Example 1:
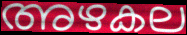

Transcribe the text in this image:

അഴകല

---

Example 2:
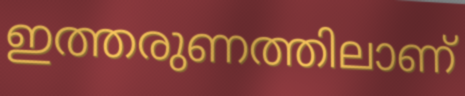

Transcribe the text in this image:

ഇത്തരുണത്തിലാണ്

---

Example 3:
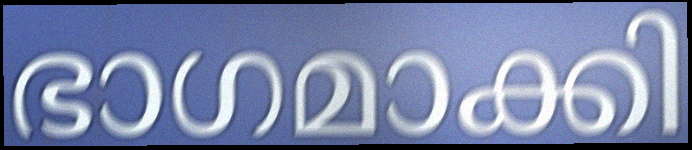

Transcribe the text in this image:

ഭാഗമാക്കി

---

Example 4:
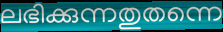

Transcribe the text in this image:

ലഭിക്കുന്നതുതന്നെ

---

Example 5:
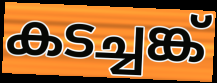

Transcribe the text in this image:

കടച്ചങ്ക്